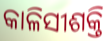
କାଳିସୀଶକ୍ତି